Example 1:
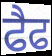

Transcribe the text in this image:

ਫੈਫ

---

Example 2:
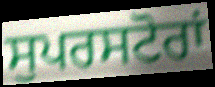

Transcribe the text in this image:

ਸੁਪਰਸਟੋਰਾਂ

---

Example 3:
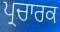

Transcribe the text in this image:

ਪ੍ਰਚਾਰਕ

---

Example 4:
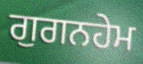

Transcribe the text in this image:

ਗੁਗਨਹੇਮ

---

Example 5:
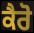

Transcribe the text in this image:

ਕੈਰੋ